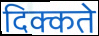
दिक्कते